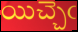
యిచ్చెఁ